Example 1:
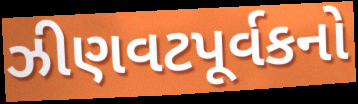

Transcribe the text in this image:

ઝીણવટપૂર્વકનો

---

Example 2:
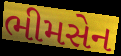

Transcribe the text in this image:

ભીમસેન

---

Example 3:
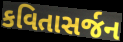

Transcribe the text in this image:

કવિતાસર્જન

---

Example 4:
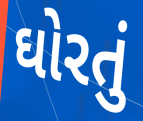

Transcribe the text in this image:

ઘોરતું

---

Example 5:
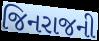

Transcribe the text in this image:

જિનરાજની